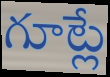
గూట్లే